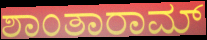
ಶಾಂತಾರಾಮ್